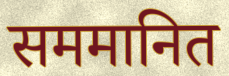
सममानित